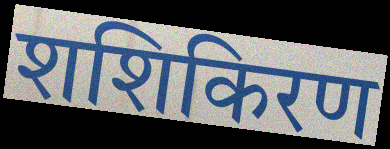
शशिकिरण